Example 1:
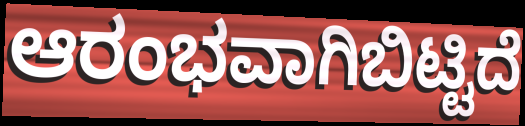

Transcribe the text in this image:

ಆರಂಭವಾಗಿಬಿಟ್ಟಿದೆ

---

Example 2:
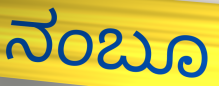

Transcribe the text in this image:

ನಂಬೂ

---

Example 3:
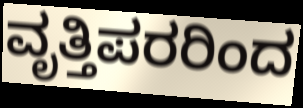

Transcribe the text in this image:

ವೃತ್ತಿಪರರಿಂದ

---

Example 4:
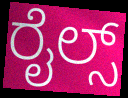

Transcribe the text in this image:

ರೈಲ್ಸ್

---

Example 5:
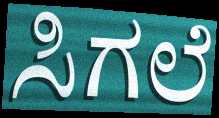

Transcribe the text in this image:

ಸಿಗಲೆ